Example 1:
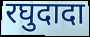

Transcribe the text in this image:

रघुदादा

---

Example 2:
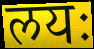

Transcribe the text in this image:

लयः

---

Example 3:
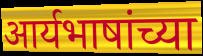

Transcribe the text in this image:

आर्यभाषांच्या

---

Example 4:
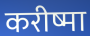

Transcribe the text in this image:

करीष्मा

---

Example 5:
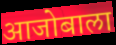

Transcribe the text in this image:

आजोबाला